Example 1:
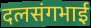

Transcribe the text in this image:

दलसंगभाई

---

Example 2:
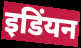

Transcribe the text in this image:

इडिंयन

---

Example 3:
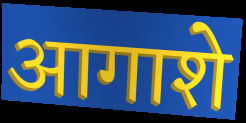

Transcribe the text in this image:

आगाशे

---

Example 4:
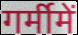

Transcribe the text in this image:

गर्मीमें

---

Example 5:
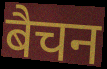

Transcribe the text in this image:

बैचन